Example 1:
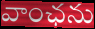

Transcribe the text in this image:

వాంఛను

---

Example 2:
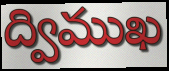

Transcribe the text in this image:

ద్విముఖ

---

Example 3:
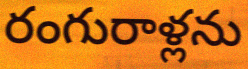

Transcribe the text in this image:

రంగురాళ్లను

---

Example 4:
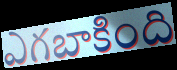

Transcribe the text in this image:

ఎగబాకింది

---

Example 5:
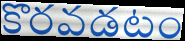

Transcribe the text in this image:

కొరవడటం